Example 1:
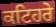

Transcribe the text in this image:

ਕਟਿਹਰੇ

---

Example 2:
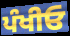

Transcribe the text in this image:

ਪੰਖੀਓ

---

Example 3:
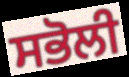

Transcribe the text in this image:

ਸਭੋਲੀ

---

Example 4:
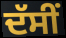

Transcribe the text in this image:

ਦੱਸੀਂ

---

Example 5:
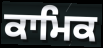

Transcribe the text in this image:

ਕਾਮਿਕ